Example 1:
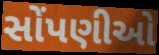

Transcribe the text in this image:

સોંપણીઓ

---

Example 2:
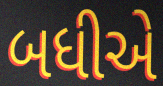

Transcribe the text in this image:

બધીએ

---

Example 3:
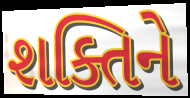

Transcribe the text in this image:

શક્તિને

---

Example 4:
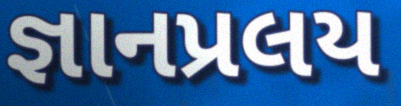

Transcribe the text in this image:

જ્ઞાનપ્રલય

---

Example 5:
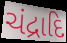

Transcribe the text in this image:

ચંદ્રાદિ